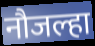
नौजल्हा